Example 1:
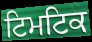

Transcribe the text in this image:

ਟਿਮਟਿਕ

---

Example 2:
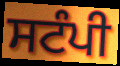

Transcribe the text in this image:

ਸਟੰਪੀ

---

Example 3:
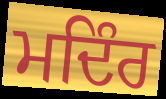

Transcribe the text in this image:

ਮਦਿੰਰ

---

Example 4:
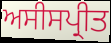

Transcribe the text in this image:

ਅਸੀਸਪ੍ਰੀਤ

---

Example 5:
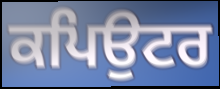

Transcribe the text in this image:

ਕਪਿਉਟਰ